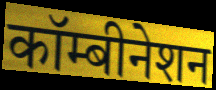
कॉम्बीनेशन